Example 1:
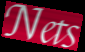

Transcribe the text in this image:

Nets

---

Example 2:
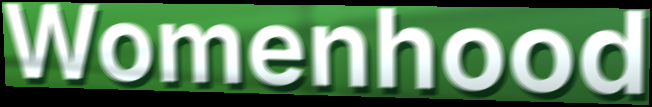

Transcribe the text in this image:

Womenhood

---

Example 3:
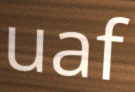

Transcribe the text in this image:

uaf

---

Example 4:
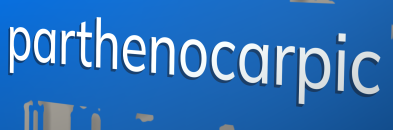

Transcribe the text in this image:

parthenocarpic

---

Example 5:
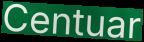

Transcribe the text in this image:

Centuar